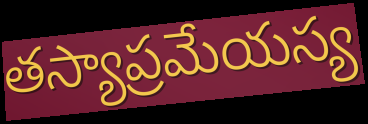
తస్యాప్రమేయస్య